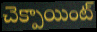
చెక్పాయింట్